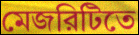
মেজরিটিতে